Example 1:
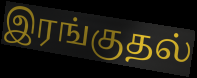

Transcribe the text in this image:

இரங்குதல்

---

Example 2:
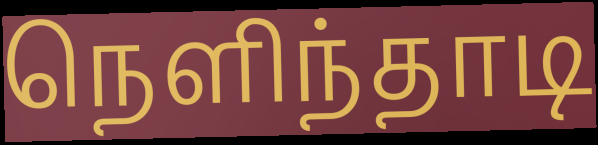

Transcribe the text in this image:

நெளிந்தாடி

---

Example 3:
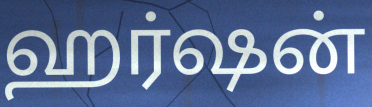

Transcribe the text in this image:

ஹர்ஷன்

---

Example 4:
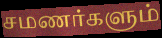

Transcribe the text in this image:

சமணர்களும்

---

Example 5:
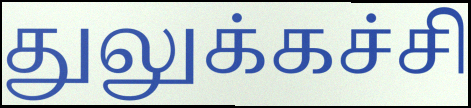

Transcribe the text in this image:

துலுக்கச்சி